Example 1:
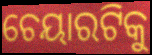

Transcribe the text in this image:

ଚେୟାରଟିକୁ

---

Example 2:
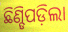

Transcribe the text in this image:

ଛିଣ୍ଡିପଡ଼ିଲା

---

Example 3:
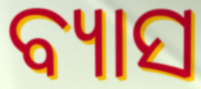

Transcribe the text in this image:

ବ୍ୟାସ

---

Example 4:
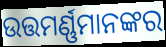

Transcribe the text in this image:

ଉତ୍ତମର୍ଣ୍ଣମାନଙ୍କର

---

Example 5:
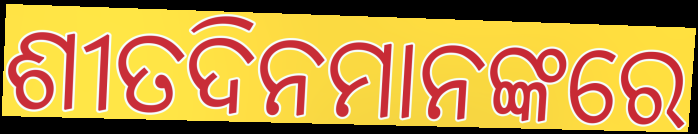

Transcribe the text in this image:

ଶୀତଦିନମାନଙ୍କରେ